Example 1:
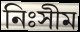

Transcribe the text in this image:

নিঃসীম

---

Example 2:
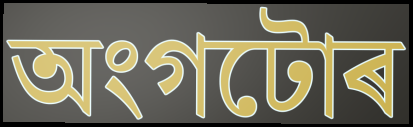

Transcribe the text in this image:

অংগটোৰ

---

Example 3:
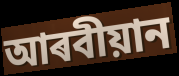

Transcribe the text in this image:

আৰবীয়ান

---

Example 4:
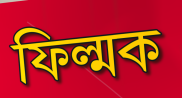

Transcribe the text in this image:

ফিল্মক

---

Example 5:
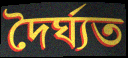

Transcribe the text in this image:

দৈৰ্ঘ্যত